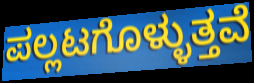
ಪಲ್ಲಟಗೊಳ್ಳುತ್ತವೆ